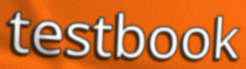
testbook